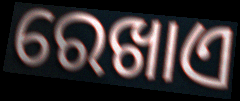
ରେଖାଏ